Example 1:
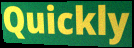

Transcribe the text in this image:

Quickly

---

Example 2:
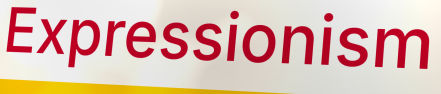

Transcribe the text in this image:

Expressionism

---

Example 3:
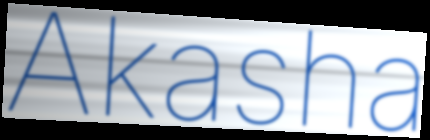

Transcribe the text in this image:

Akasha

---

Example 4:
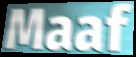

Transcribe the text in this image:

Maaf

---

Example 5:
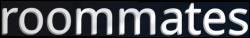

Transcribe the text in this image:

roommates